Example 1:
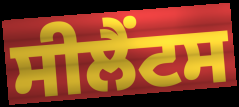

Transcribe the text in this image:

ਸੀਲੈਂਟਸ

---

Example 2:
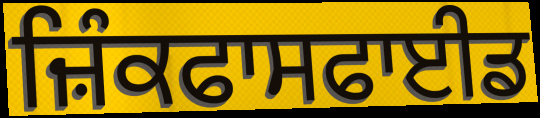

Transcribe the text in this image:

ਜ਼ਿੰਕਫਾਸਫਾਈਡ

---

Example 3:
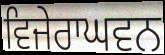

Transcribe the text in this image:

ਵਿਜੇਰਾਘਵਨ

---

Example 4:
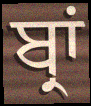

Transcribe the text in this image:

ਬ੍ਰਾਂ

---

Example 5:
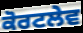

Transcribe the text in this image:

ਕੋਰਟਲੇਵ